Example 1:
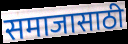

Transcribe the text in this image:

समाजासाठी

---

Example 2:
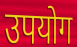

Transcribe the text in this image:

उपयोग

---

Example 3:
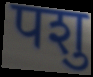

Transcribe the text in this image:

पशु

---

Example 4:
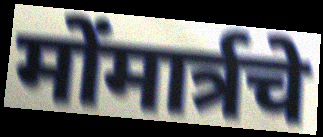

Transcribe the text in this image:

मोंमार्त्रचे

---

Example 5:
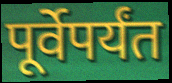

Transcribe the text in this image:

पूर्वेपर्यंत